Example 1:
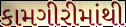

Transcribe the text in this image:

કામગીરીમાંથી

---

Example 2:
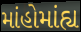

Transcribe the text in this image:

માંહોમાંહ્ય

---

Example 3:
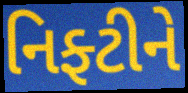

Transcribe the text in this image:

નિફ્ટીને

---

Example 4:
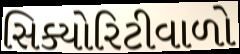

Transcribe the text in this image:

સિક્યોરિટીવાળો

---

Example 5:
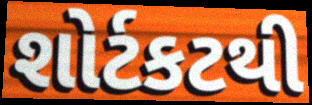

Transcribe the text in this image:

શોર્ટકટથી